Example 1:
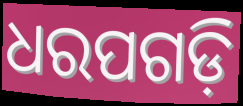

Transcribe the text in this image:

ଧରପଗଡ଼ି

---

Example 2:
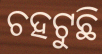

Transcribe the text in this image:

ଚହଟୁଛି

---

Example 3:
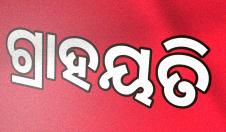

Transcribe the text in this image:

ଗ୍ରାହୟତି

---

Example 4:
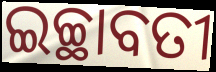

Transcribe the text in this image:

ଇଚ୍ଛାବତୀ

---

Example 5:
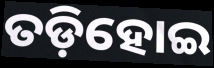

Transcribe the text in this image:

ତଡ଼ିହୋଇ